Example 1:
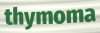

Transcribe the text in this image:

thymoma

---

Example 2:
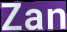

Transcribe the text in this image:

Zan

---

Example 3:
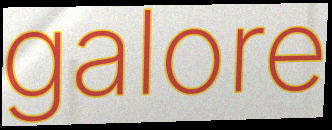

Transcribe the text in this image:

galore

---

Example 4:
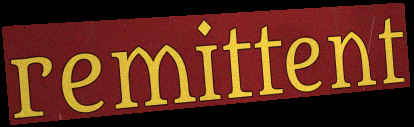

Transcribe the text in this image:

remittent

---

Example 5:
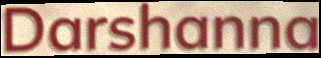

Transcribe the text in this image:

Darshanna